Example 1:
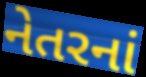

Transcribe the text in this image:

નેતરનાં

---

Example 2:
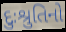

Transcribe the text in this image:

દુઃશ્રુતિનો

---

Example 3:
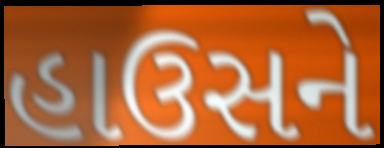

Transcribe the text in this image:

હાઉસને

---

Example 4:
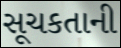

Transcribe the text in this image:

સૂચકતાની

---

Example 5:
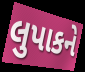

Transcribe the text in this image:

લુપાકને